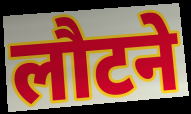
लौटने